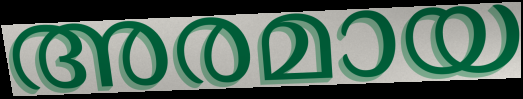
അരമായ